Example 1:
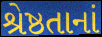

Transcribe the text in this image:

શ્રેષ્ઠતાનાં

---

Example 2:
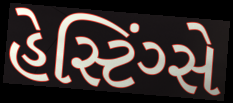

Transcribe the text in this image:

હેસ્ટિંગ્સે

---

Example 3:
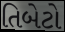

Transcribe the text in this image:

તિબેટો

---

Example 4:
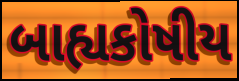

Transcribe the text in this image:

બાહ્યકોષીય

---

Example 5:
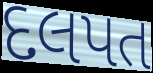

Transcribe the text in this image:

દલપત